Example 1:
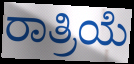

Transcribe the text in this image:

ರಾತ್ರಿಯೆ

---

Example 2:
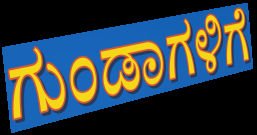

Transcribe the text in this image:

ಗುಂಡಾಗಳಿಗೆ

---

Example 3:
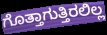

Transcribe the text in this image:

ಗೊತ್ತಾಗುತ್ತಿರಲಿಲ್ಲ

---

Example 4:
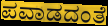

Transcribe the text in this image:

ಪವಾಡದಂತೆ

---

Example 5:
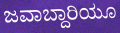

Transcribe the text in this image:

ಜವಾಬ್ದಾರಿಯೂ